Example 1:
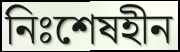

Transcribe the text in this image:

নিঃশেষহীন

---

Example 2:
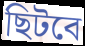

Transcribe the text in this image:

ছিটবে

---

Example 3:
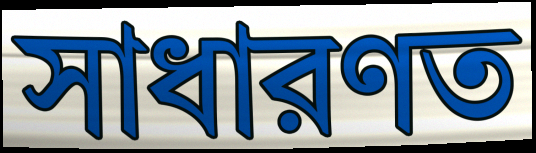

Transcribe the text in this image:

সাধারণত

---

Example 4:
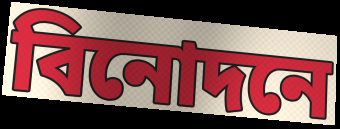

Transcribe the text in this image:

বিনোদনে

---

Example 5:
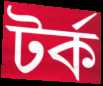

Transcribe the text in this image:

টর্ক